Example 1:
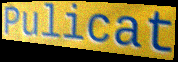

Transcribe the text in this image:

Pulicat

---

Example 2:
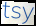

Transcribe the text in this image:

tsy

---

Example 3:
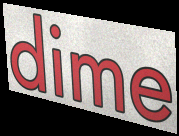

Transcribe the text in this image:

dime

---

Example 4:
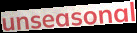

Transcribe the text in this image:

unseasonal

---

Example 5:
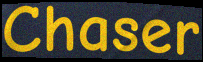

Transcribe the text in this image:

Chaser